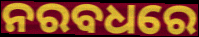
ନରବଧରେ